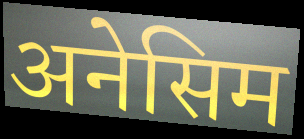
अनेसिम